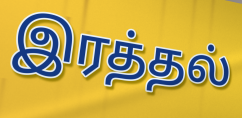
இரத்தல்